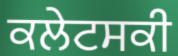
ਕਲੇਟਸਕੀ